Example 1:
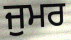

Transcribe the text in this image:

ਜੁਮਰ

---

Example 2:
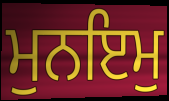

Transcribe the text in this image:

ਮੁਨਇਮੁ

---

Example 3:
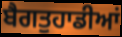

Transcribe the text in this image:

ਬੈਗਤੁਹਾਡੀਆਂ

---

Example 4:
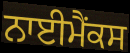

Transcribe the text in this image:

ਨਾਈਮੈਂਕਸ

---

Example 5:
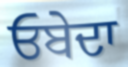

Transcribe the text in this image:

ਓਬੇਦਾ